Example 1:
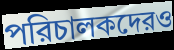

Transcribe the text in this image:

পরিচালকদেরও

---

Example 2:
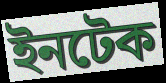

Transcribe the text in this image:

ইনটেক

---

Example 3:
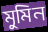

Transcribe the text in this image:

মুমিন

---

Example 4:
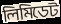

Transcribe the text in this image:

লিমিডেট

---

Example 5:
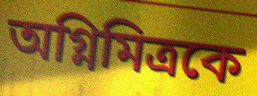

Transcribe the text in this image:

অগ্নিমিত্রকে